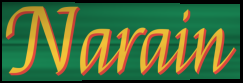
Narain